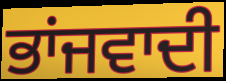
ਭਾਂਜਵਾਦੀ